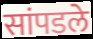
सांपडले